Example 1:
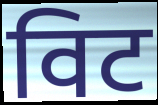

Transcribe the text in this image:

विट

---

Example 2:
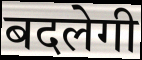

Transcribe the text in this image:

बदलेगी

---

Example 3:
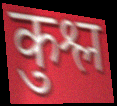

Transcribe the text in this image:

कुश्ल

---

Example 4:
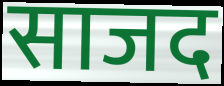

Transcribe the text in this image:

साजद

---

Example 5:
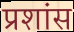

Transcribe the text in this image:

प्रशांस